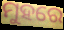
ମୁହରେ